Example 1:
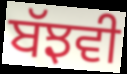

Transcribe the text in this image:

ਬੱਝਵੀ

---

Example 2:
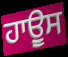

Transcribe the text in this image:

ਹਾਊੁਸ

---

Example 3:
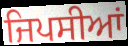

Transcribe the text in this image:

ਜਿਪਸੀਆਂ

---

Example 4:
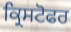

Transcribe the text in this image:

ਕ੍ਰਿਸਟੋਫਰ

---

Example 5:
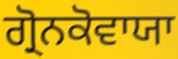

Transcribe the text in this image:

ਗ੍ਰੋਨਕੋਵਾਯਾ